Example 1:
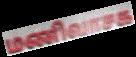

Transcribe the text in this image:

மணிவாசக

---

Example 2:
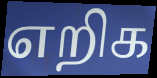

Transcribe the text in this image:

எறிக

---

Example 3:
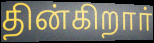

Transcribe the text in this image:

தின்கிறார்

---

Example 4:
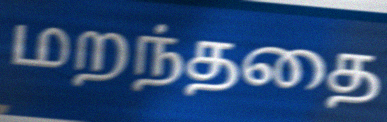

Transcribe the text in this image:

மறந்ததை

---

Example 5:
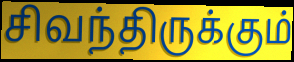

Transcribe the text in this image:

சிவந்திருக்கும்